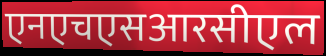
एनएचएसआरसीएल